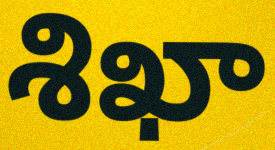
శిఖా